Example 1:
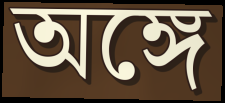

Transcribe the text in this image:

অঙ্গে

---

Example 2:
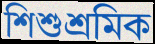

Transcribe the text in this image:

শিশুশ্রমিক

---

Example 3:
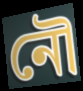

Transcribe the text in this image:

নৌ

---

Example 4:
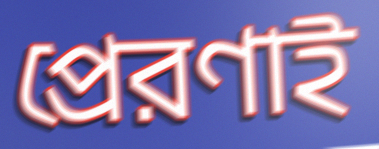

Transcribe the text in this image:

প্রেরণাই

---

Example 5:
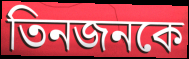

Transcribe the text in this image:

তিনজনকে